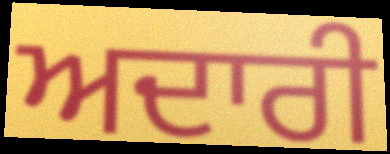
ਅਦਾਰੀ